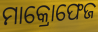
ମାକ୍ରୋଫେଜ